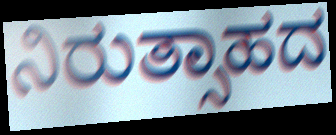
ನಿರುತ್ಸಾಹದ